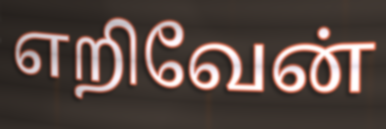
எறிவேன்